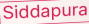
Siddapura